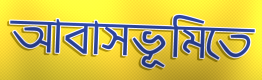
আবাসভূমিতে